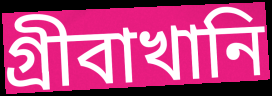
গ্রীবাখানি